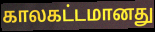
காலகட்டமானது